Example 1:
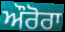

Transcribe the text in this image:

ਔਰੋਰਾ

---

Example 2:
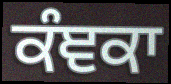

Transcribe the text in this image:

ਕੰਞਕਾ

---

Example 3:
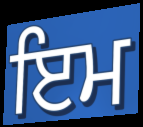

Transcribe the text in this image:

ਇਮ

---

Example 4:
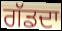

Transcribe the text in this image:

ਗੱਡਦਾ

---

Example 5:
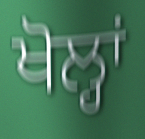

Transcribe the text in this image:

ਖੋਲ੍ਹਾਂ